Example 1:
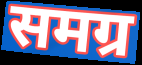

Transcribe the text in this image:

समग्र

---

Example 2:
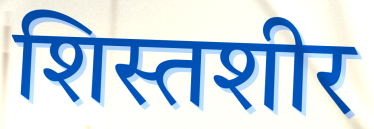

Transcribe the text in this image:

शिस्तशीर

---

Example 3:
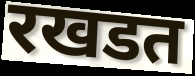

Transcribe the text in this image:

रखडत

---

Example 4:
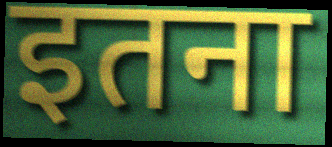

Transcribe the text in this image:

इतना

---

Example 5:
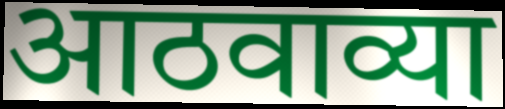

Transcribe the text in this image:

आठवाव्या